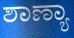
ಶಾಣ್ಯಾ